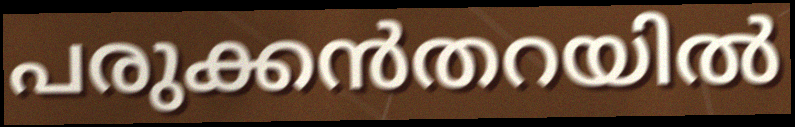
പരുക്കൻതറയിൽ